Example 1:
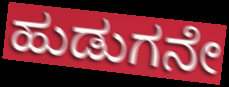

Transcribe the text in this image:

ಹುಡುಗನೇ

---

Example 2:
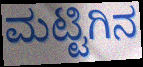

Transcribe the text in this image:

ಮಟ್ಟಿಗಿನ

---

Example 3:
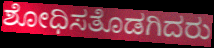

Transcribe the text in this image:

ಶೋಧಿಸತೊಡಗಿದರು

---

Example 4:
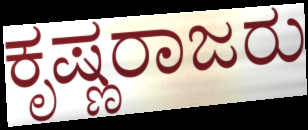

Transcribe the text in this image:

ಕೃಷ್ಣರಾಜರು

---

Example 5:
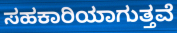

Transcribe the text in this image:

ಸಹಕಾರಿಯಾಗುತ್ತವೆ